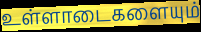
உள்ளாடைகளையும்